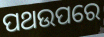
ପଥଉପରେ